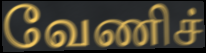
வேணிச்